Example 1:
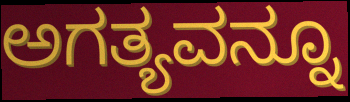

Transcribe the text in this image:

ಅಗತ್ಯವನ್ನೂ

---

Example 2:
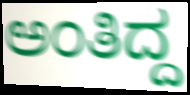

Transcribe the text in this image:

ಅಂತಿದ್ದ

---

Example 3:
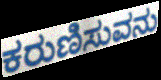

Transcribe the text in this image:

ಕರುಣಿಸುವನು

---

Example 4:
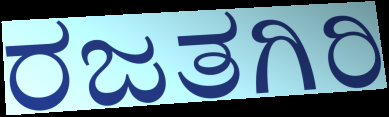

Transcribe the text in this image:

ರಜತಗಿರಿ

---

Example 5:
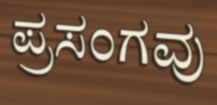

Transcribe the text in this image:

ಪ್ರಸಂಗವು